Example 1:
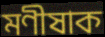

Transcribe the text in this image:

মণীষাক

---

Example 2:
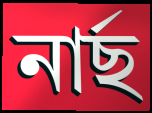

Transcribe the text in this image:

নাৰ্ছ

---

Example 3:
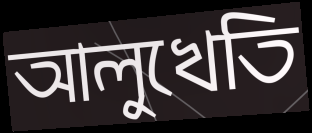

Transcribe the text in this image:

আলুখেতি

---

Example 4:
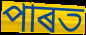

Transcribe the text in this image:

পাৰত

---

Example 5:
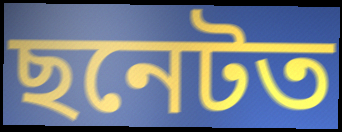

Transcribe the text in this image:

ছনেটত